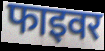
फाइवर